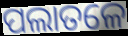
ପଲାତଳେ